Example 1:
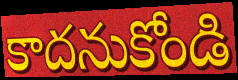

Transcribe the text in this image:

కాదనుకోండి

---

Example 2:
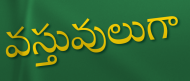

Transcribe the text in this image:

వస్తువులుగా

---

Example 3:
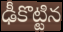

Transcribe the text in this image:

ఢీకొట్టిన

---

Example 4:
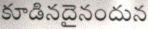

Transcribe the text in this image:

కూడినదైనందున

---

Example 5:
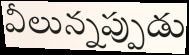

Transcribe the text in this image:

వీలున్నప్పుడు